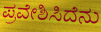
ಪ್ರವೇಶಿಸಿದೆನು